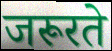
जरूरते